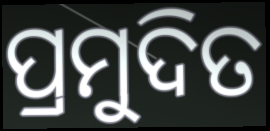
ପ୍ରମୁଦିତ